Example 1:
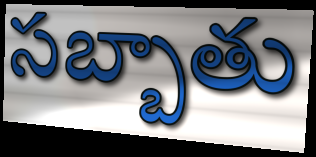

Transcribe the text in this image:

సబ్బాతు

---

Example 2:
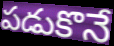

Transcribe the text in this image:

పడుకొనే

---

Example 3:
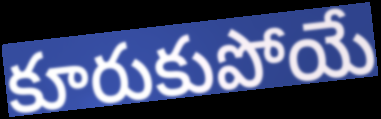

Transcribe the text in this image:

కూరుకుపోయే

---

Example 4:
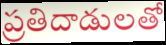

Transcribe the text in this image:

ప్రతిదాడులతో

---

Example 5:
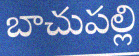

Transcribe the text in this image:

బాచుపల్లి